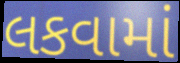
લકવામાં